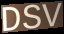
DSV